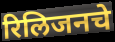
रिलिजनचे